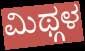
ಮಿಥ್ಗಳ